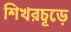
শিখরচূড়ে